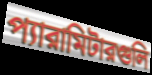
প্যারামিটারগুলি